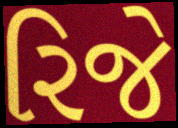
રિજે